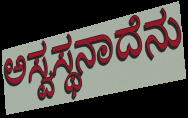
ಅಸ್ವಸ್ಥನಾದೆನು